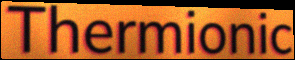
Thermionic